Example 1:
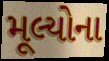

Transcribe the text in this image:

મૂલ્‍યોના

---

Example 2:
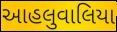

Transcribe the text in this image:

આહલુવાલિયા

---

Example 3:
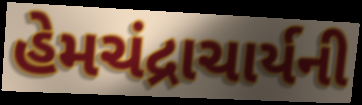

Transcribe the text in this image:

હેમચંદ્રાચાર્યની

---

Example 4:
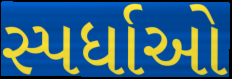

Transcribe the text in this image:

સ્પર્ધાઓ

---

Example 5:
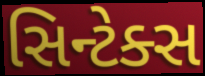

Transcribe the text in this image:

સિન્ટેક્સ